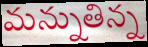
మన్నుతిన్న